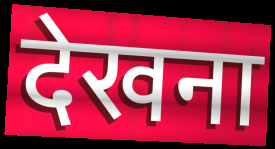
देखना